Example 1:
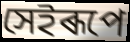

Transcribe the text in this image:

সেইৰূপে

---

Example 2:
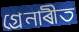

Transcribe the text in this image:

গ্ৰেনাৰীত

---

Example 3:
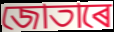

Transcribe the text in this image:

জোতাৰে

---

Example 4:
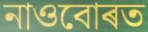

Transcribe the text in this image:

নাওবোৰত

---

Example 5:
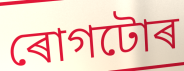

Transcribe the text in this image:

ৰোগটোৰ